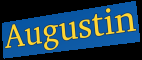
Augustin